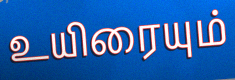
உயிரையும்